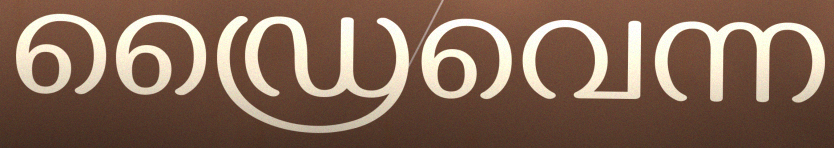
ഡ്രൈവെന്ന